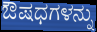
ಔಷಧಗಳನ್ನು